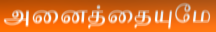
அனைத்தையுமே